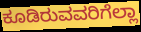
ಕೂಡಿರುವವರಿಗೆಲ್ಲಾ